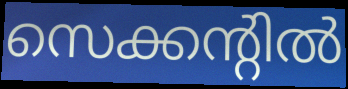
സെക്കന്റിൽ